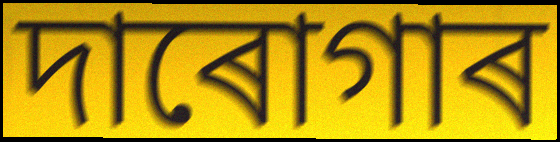
দাৰোগাৰ